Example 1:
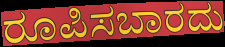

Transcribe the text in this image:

ರೂಪಿಸಬಾರದು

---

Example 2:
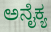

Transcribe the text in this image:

ಅನೈಕ್ಯ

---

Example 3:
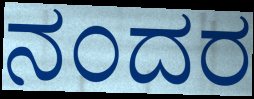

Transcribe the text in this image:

ನಂದರ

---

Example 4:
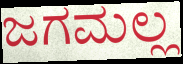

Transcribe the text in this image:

ಜಗಮಲ್ಲ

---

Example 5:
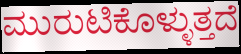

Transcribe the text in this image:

ಮುರುಟಿಕೊಳ್ಳುತ್ತದೆ